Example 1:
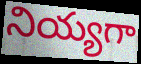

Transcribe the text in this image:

నియ్యగా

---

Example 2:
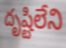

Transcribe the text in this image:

దృష్టిలేని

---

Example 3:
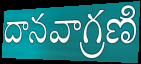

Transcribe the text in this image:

దానవాగ్రణి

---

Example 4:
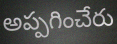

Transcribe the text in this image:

అప్పగించేరు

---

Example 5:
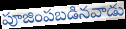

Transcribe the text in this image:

పూజింపబడినవాడు